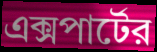
এক্সপার্টের